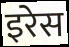
इरेस